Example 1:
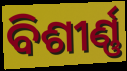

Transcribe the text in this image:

ବିଶୀର୍ଣ୍ଣ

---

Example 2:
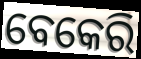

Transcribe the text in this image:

ବେକେରି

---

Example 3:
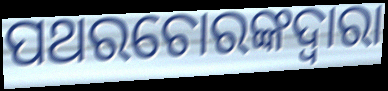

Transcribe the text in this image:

ପଥରଚୋରଙ୍କଦ୍ୱାରା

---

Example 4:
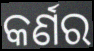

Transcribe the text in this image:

କର୍ଣର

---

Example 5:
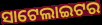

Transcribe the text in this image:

ସାଟେଲାଇଟର